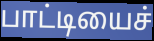
பாட்டியைச்